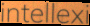
intellexi